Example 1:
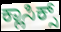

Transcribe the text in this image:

ಕ್ಲಾಸಿಕ್ಸ್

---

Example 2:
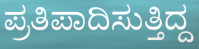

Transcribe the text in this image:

ಪ್ರತಿಪಾದಿಸುತ್ತಿದ್ದ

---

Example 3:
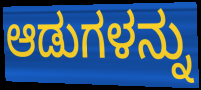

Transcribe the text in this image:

ಆಡುಗಳನ್ನು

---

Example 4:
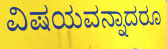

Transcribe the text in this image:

ವಿಷಯವನ್ನಾದರೂ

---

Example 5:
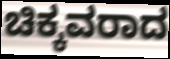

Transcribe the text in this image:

ಚಿಕ್ಕವರಾದ